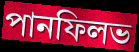
পানফিলভ